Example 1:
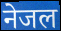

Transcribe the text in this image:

नेजल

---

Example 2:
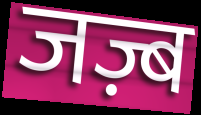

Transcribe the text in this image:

जज़्ब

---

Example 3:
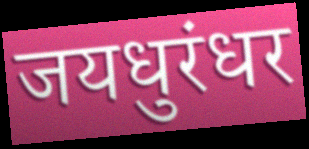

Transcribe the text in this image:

जयधुरंधर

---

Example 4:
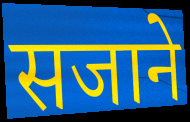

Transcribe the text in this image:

सजाने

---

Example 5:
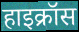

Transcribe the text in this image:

हाइक्रॉस